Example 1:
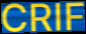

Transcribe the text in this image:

CRIF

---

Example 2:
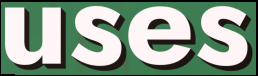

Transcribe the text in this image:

uses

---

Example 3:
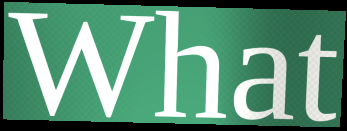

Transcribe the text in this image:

What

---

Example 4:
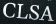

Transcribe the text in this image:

CLSA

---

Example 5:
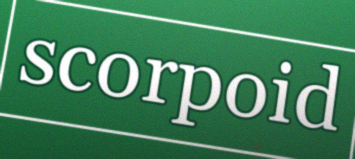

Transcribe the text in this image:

scorpoid